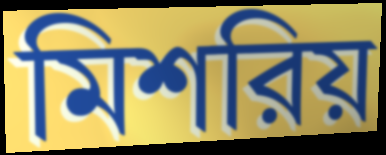
মিশরিয়